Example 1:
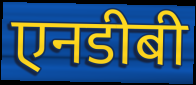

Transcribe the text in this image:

एनडीबी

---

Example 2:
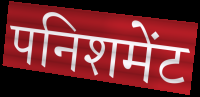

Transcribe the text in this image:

पनिशमेंट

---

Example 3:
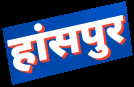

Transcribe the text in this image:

हांसपुर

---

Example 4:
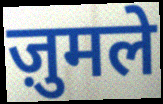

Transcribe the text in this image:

ज़ुमले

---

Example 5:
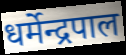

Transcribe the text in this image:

धर्मेन्द्रपाल